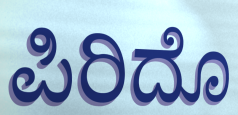
ಪಿರಿದೊ